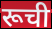
रूची